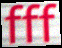
fff